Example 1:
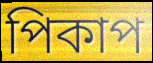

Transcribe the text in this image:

পিকাপ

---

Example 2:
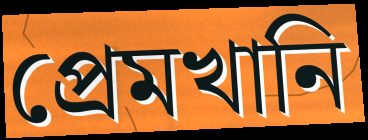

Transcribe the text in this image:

প্রেমখানি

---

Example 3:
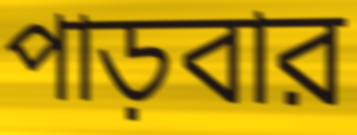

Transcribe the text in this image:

পাড়বার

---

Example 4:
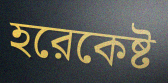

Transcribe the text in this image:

হরেকেষ্ট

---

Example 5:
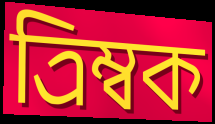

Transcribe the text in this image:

ত্রিম্বক